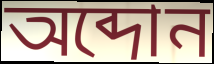
অব্দোন